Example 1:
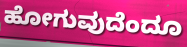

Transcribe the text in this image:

ಹೋಗುವುದೆಂದೂ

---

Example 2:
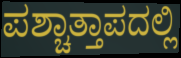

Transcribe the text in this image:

ಪಶ್ಚಾತ್ತಾಪದಲ್ಲಿ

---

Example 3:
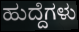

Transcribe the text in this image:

ಹುದ್ದೆಗಳು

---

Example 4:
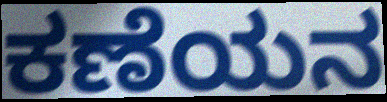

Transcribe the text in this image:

ಕಣೆಯನ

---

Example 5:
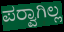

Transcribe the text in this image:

ಪರ‍್ವಾಗಿಲ್ಲ